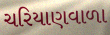
ચરિયાણવાળા